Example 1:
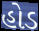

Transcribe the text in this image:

હોડ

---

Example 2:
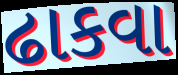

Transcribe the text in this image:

ઢાકવા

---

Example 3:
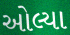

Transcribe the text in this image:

ઓલ્યા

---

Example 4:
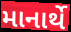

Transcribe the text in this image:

માનાર્થે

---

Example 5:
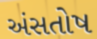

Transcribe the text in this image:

અંસતોષ